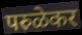
परुळेकर